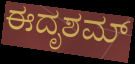
ಈದೃಶಮ್